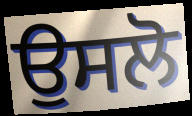
ਉਸਲੋ